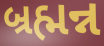
બ્રહ્મન્ન